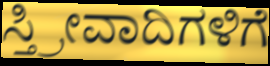
ಸ್ತ್ರೀವಾದಿಗಳಿಗೆ